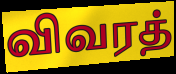
விவரத்